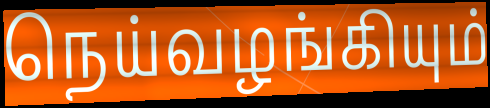
நெய்வழங்கியும்